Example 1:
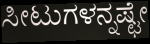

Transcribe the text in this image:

ಸೀಟುಗಳನ್ನಷ್ಟೇ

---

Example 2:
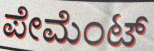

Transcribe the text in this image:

ಪೇಮೆಂಟ್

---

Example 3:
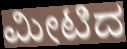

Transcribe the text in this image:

ಮೀಟಿದ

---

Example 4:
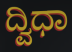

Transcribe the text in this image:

ದ್ವಿಧಾ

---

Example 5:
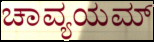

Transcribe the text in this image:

ಚಾವ್ಯಯಮ್